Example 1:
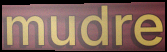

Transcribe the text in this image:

mudre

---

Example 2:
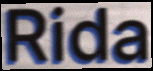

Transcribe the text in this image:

Rida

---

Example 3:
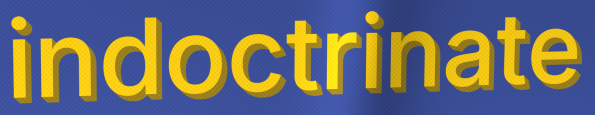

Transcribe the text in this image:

indoctrinate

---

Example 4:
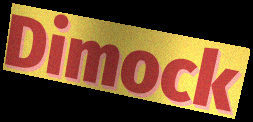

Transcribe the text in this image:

Dimock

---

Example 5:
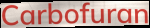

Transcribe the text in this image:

Carbofuran